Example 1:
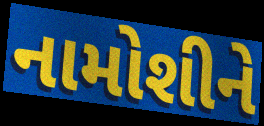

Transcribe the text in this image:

નામોશીને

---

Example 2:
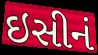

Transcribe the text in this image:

ઇસીનં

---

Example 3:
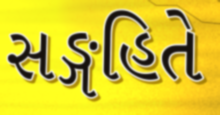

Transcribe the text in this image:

સઙ્ગહિતે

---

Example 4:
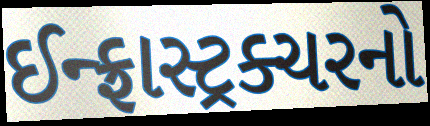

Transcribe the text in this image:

ઈન્ફ્રાસ્ટ્રક્ચરનો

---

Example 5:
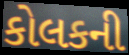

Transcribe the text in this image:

કોલકની